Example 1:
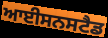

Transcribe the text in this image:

ਆਈਸਨਸਟੈਡ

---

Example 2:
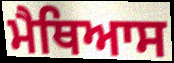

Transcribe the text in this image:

ਮੈਥਿਆਸ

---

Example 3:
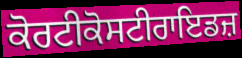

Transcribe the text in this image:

ਕੋਰਟੀਕੋਸਟੀਰਾਇਡਜ਼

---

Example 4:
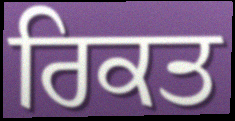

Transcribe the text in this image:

ਰਿਕਤ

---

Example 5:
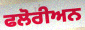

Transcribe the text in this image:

ਫਲੋਰੀਅਨ